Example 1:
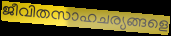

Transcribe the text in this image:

ജീവിതസാഹചര്യങ്ങളെ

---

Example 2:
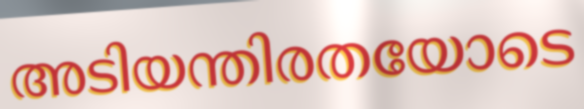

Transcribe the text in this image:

അടിയന്തിരതയോടെ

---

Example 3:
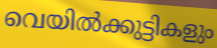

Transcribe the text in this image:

വെയിൽക്കുട്ടികളും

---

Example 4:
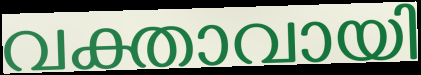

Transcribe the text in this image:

വക്താവായി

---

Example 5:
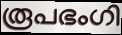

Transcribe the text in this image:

രൂപഭംഗി